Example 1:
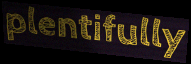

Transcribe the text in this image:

plentifully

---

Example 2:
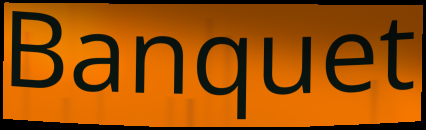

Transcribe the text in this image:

Banquet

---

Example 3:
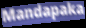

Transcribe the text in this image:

Mandapaka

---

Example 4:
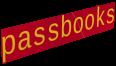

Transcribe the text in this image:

passbooks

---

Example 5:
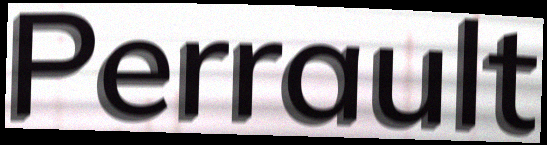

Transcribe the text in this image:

Perrault